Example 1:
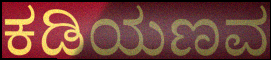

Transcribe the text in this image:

ಕಡಿಯಣವ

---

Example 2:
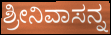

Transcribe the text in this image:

ಶ್ರೀನಿವಾಸನ್ನ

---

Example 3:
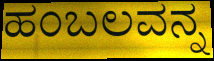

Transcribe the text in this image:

ಹಂಬಲವನ್ನ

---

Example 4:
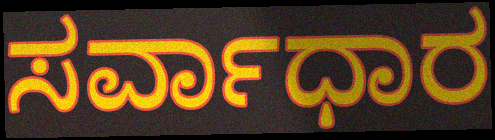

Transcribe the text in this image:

ಸರ್ವಾಧಾರ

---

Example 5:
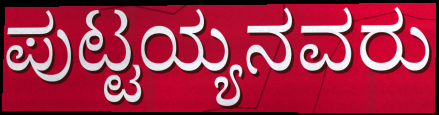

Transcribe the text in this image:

ಪುಟ್ಟಯ್ಯನವರು